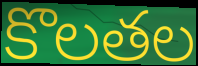
కొలతల